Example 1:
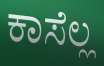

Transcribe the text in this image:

ಕಾಸೆಲ್ಲ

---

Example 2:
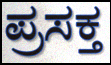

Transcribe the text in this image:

ಪ್ರಸಕ್ತ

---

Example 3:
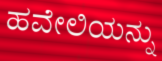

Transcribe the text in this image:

ಹವೇಲಿಯನ್ನು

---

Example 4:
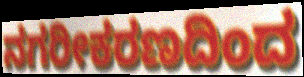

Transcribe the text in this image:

ನಗರೀಕರಣದಿಂದ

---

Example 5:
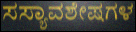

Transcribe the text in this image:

ಸಸ್ಯಾವಶೇಷಗಳ